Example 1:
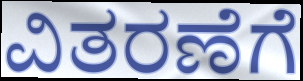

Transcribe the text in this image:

ವಿತರಣೆಗೆ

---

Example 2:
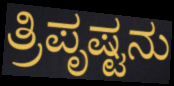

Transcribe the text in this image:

ತ್ರಿಪೃಷ್ಟನು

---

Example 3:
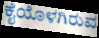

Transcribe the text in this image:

ಕೈಯೊಳಗಿರುವ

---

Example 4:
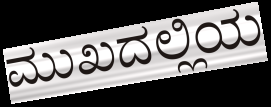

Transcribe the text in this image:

ಮುಖದಲ್ಲಿಯ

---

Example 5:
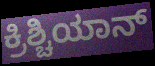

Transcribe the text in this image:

ಕ್ರಿಶ್ಚಿಯಾನ್